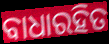
ବାଧାରହିତ